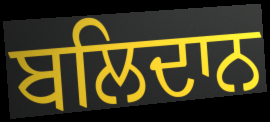
ਬਲਿਦਾਨ